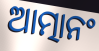
ଆତ୍ମାନଂ